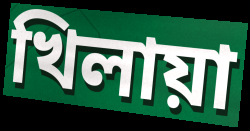
খিলায়া